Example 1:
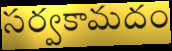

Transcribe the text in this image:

సర్వకామదం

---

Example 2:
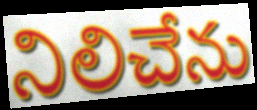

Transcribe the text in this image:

నిలిచేను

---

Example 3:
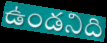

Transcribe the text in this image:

ఉండనిది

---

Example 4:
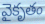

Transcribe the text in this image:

వైకృతం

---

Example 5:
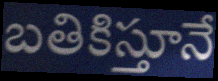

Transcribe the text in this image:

బతికిస్తూనే